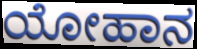
ಯೋಹಾನ